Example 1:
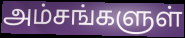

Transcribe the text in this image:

அம்சங்களுள்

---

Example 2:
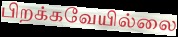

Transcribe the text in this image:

பிறக்கவேயில்லை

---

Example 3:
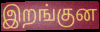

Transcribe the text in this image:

இறங்குன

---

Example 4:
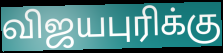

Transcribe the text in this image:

விஜயபுரிக்கு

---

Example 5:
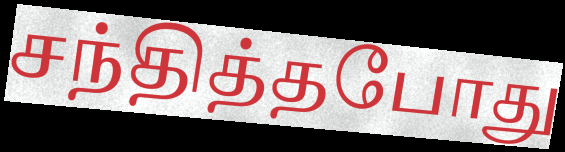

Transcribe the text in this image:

சந்தித்தபோது